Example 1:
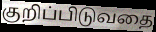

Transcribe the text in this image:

குறிப்பிடுவதை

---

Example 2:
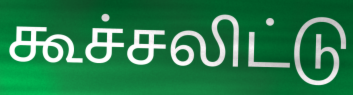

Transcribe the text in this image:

கூச்சலிட்டு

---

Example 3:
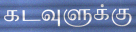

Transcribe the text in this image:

கடவுளுக்கு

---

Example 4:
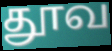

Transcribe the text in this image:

தூவ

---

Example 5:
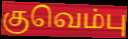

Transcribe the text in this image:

குவெம்பு